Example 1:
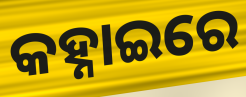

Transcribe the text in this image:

କହ୍ନାଇରେ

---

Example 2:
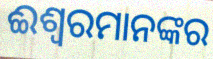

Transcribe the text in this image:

ଈଶ୍ୱରମାନଙ୍କର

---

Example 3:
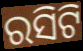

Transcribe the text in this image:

ରସିଟି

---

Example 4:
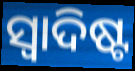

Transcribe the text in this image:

ସ୍ବାଦିଷ୍ଟ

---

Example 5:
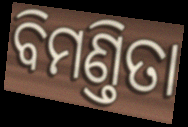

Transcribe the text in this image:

ବିମଣ୍ତିତା